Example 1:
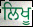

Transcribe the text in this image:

ਲਿਖੂ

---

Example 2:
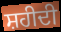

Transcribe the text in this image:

ਸ਼ਹੀਦੀ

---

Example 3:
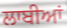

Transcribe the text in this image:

ਲਾਬੀਆਂ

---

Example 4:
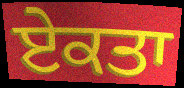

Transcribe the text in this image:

ਏਕਤਾ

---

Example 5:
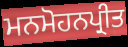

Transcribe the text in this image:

ਮਨਮੋਹਨਪ੍ਰੀਤ